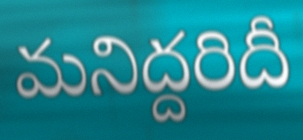
మనిద్దరిదీ